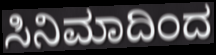
ಸಿನಿಮಾದಿಂದ